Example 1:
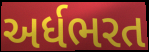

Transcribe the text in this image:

અર્ધભરત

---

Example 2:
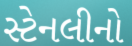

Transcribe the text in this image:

સ્ટેનલીનો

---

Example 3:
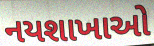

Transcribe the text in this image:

નયશાખાઓ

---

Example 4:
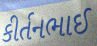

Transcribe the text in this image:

કીર્તનભાઈ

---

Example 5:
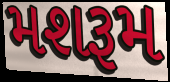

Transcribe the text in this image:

મશરૂમ